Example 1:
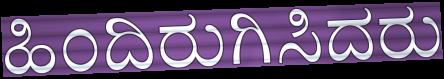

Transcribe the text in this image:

ಹಿಂದಿರುಗಿಸಿದರು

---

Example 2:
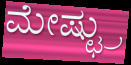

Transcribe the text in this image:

ಮೇಷ್ಟ್ರು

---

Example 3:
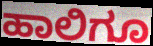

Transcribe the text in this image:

ಹಾಲಿಗೂ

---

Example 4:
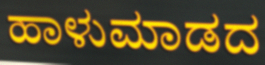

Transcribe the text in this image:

ಹಾಳುಮಾಡದ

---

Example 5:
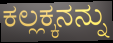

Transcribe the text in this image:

ಕಲ್ಲಕ್ಕನನ್ನು